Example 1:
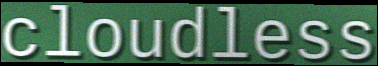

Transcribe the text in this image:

cloudless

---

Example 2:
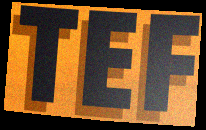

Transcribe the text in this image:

TEF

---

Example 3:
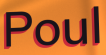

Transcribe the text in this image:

Poul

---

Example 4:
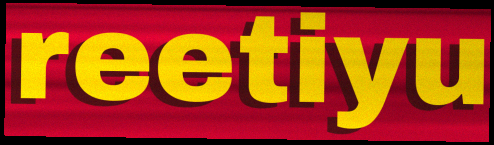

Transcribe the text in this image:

reetiyu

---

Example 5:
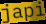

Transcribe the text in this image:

japi